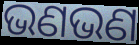
ଭଣଭଣ